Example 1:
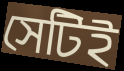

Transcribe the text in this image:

সেটিই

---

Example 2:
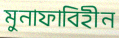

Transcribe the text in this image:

মুনাফাবিহীন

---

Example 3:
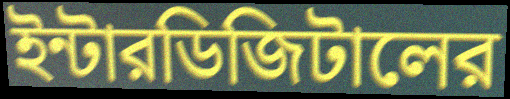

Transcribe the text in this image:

ইন্টারডিজিটালের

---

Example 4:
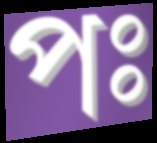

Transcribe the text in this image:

পঃ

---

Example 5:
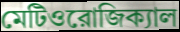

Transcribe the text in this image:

মেটিওরোজিক্যাল